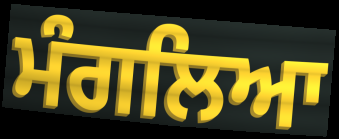
ਮੰਗਲਿਆ